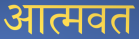
आत्मवत